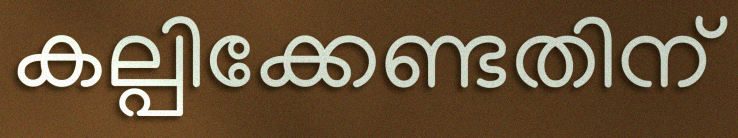
കല്പിക്കേണ്ടതിന്